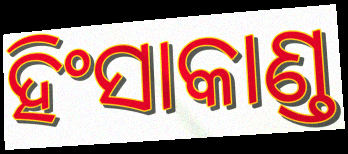
ହିଂସାକାଣ୍ଡ